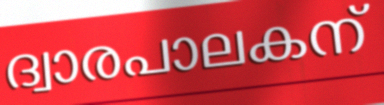
ദ്വാരപാലകന്